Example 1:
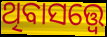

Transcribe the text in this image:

ଥିବାସତ୍ତ୍ଵେ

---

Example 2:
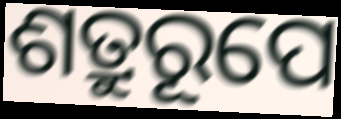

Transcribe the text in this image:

ଶତ୍ରୁରୂପେ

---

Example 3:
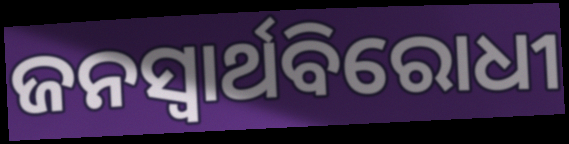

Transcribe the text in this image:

ଜନସ୍ଵାର୍ଥବିରୋଧୀ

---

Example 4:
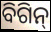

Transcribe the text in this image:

ବିଗିନ୍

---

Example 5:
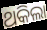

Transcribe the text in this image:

ଥକିଲା